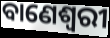
ବାଣେଶ୍ୱରୀ